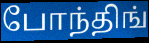
போந்திங்